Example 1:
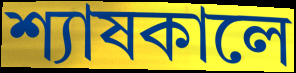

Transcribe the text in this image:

শ্যাষকালে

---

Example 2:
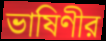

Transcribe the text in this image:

ভাষিণীর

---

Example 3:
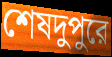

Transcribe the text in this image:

শেষদুপুরে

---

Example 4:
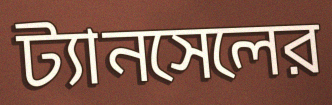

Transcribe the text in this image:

ট্যানসেলের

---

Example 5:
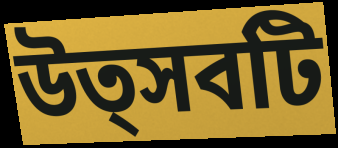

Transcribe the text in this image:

উত্সবটি